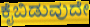
ಕೈಬಿಡುವುದೇ